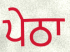
ਪੇਠਾ